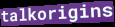
talkorigins